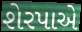
શેરપાએ